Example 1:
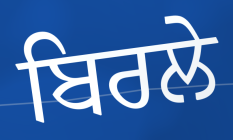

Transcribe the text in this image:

ਬਿਰਲੇ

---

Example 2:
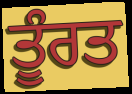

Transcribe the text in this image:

ਤੂੰਰਤ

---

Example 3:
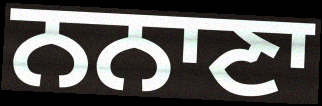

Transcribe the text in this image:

ਨਨਾਣਾ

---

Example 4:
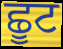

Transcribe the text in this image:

ਛੂਟ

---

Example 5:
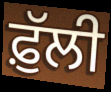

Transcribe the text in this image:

ਫ਼ੁੱਲੀ